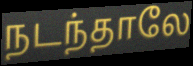
நடந்தாலே